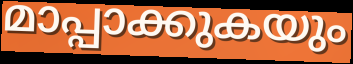
മാപ്പാക്കുകയും